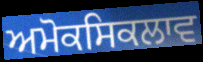
ਅਮੋਕਸਿਕਲਾਵ